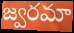
జ్వరమా